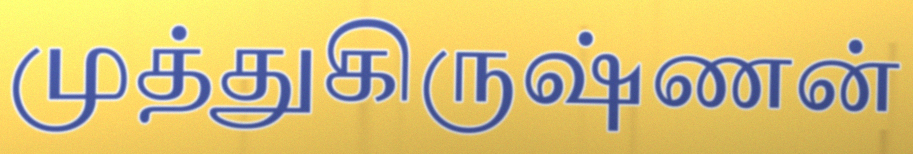
முத்துகிருஷ்ணன்